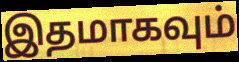
இதமாகவும்